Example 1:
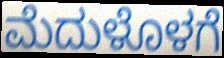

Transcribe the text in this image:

ಮೆದುಳೊಳಗೆ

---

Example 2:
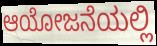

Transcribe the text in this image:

ಆಯೋಜನೆಯಲ್ಲಿ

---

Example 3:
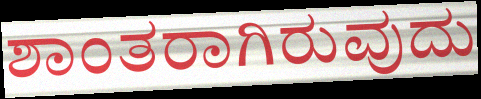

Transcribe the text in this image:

ಶಾಂತರಾಗಿರುವುದು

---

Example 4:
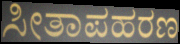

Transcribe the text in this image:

ಸೀತಾಪಹರಣ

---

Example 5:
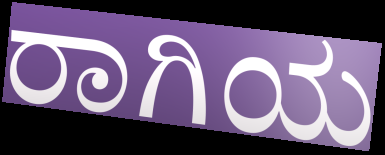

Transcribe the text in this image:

ರಾಗಿಯ